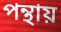
পন্থায়